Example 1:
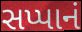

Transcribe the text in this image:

સપ્પાનં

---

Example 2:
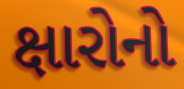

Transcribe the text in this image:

ક્ષારોનો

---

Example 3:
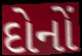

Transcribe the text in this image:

દોનોં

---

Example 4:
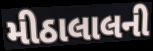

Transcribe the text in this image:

મીઠાલાલની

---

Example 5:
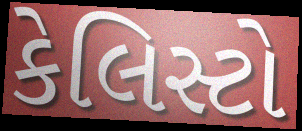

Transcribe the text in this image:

કેલિસ્ટો